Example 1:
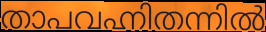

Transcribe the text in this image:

താപവഹ്നിതന്നിൽ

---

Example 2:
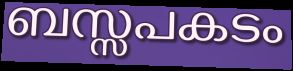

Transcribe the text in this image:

ബസ്സപകടം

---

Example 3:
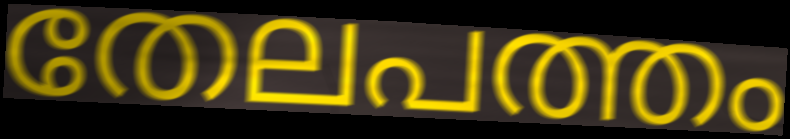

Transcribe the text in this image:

തേലപത്തം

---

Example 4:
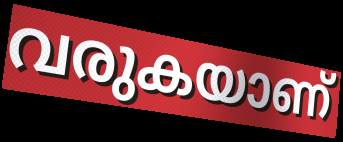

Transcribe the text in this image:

വരുകയാണ്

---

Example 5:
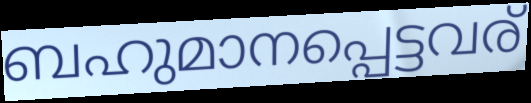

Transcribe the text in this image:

ബഹുമാനപ്പെട്ടവര്